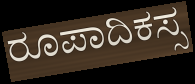
ರೂಪಾದಿಕಸ್ಸ